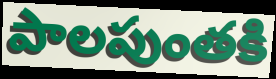
పాలపుంతకి